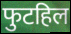
फुटहिल